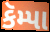
કૅમ્પા